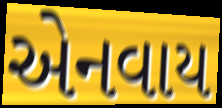
એનવાય